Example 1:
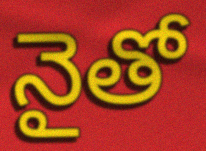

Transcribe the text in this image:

నైతో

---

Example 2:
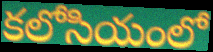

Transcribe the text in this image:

కలోసియంలో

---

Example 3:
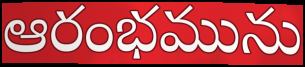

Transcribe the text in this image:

ఆరంభమును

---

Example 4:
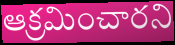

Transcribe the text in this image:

ఆక్రమించారని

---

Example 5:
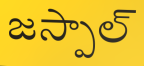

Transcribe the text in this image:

జస్పాల్